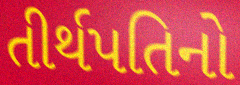
તીર્થપતિનો